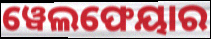
ୱେଲଫେୟାର